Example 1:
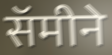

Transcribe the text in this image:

सॅमीने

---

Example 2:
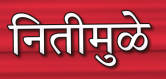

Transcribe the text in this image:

नितीमुळे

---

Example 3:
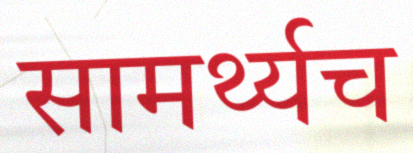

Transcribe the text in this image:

सामर्थ्यच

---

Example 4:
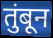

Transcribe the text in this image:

तुंबून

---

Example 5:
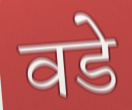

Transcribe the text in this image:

वडे